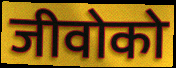
जीवोको